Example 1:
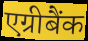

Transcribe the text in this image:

एग्रीबैंक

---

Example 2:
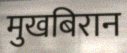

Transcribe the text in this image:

मुखबिरान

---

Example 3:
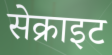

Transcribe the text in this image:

सेक्राइट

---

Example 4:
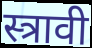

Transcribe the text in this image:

स्त्रावी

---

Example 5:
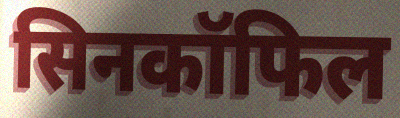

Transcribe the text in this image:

सिनकॉफिल